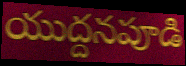
యుద్దనపూడి